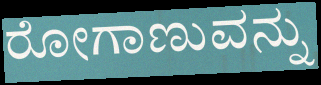
ರೋಗಾಣುವನ್ನು